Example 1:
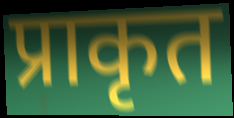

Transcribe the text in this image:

प्राकृत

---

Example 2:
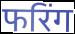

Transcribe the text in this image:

फरिंग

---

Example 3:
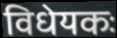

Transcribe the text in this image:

विधेयकः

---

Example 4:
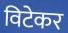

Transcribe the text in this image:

विटेकर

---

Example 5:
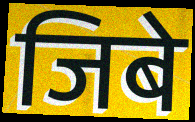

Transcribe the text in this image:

जिबे